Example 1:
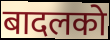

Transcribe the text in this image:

बादलको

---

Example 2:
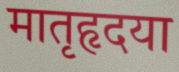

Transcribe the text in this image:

मातृहृदया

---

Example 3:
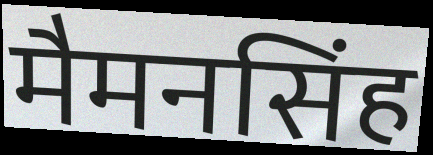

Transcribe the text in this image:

मैमनसिंह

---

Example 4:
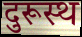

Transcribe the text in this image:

दुरूस्थ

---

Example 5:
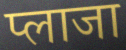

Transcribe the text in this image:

प्‍लाजा